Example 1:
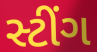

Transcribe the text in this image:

સ્ટીંગ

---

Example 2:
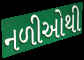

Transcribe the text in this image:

નળીઓથી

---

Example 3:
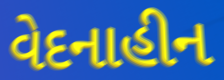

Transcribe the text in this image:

વેદનાહીન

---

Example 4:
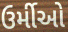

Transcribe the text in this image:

ઉર્મીઓ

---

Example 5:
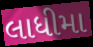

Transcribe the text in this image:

લાધીમા